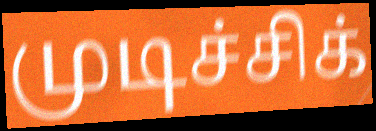
முடிச்சிக்